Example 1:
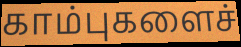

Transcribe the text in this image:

காம்புகளைச்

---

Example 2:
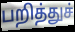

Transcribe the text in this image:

பறித்துச்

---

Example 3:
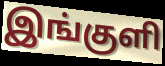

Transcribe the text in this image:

இங்குளி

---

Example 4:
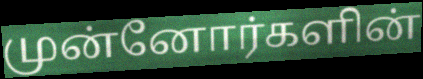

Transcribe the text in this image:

முன்னோர்களின்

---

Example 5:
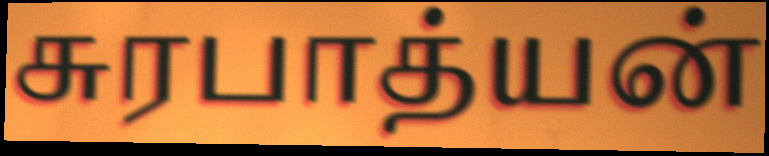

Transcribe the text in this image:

சுரபாத்யன்